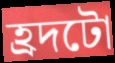
হ্ৰদটো